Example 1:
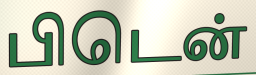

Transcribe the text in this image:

பிடென்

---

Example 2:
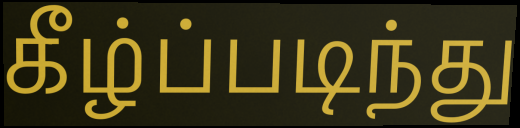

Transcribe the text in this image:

கீழ்ப்படிந்து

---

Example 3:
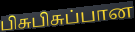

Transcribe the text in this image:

பிசுபிசுப்பான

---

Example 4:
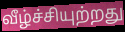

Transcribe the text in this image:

வீழ்ச்சியுற்றது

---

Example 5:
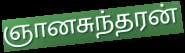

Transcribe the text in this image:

ஞானசுந்தரன்